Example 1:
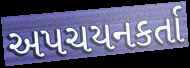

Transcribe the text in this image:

અપચયનકર્તા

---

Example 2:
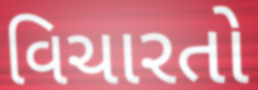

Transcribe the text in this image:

વિચારતો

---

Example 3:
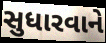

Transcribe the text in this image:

સુધારવાને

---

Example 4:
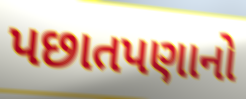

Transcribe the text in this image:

પછાતપણાનો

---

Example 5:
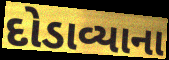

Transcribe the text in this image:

દોડાવ્યાના